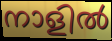
നാളിൽ